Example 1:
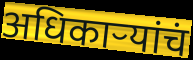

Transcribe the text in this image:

अधिकाऱ्यांचं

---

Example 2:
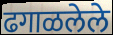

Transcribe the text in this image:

ढगाळलेले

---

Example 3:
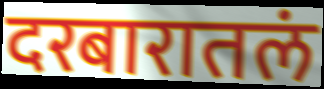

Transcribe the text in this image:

दरबारातलं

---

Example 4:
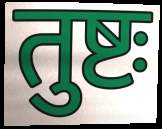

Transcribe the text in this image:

तुष्टः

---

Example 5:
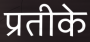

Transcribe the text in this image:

प्रतीके